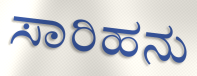
ಸಾರಿಹನು